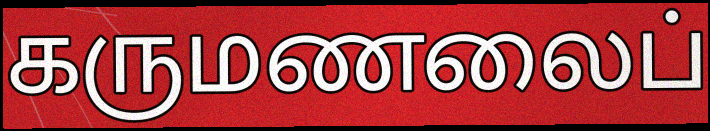
கருமணலைப்